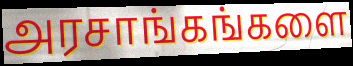
அரசாங்கங்களை